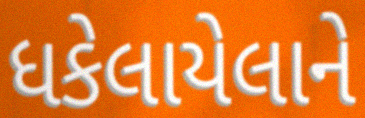
ધકેલાયેલાને